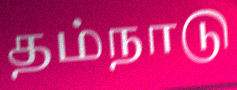
தம்நாடு